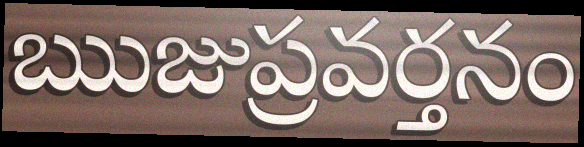
ఋజుప్రవర్తనం